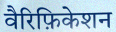
वैरिफ़िकेशन